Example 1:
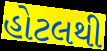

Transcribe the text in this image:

હોટલથી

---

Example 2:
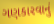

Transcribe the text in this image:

ગણકારવાનું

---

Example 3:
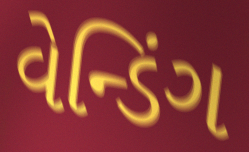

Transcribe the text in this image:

વેન્ડિંગ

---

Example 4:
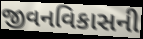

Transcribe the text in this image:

જીવનવિકાસની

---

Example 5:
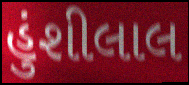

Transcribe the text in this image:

હુંશીલાલ